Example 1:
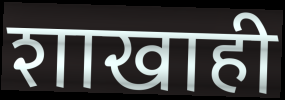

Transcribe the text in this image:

शाखाही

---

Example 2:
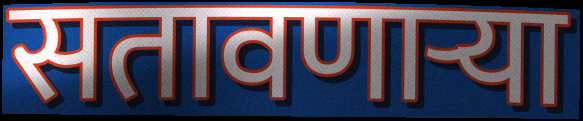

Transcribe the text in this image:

सतावणार्‍या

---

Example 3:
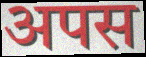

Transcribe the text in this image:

अपस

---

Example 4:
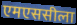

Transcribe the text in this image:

एमएससीला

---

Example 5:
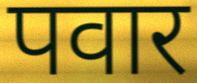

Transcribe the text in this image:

पवार